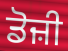
ਡੋਜ਼ੀ